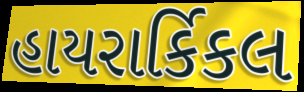
હાયરાર્કિકલ